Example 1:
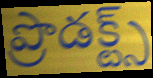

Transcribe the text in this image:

ప్రొడక్ట్స్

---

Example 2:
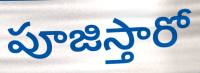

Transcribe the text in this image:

పూజిస్తారో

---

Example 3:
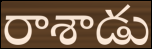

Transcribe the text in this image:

రాశాడు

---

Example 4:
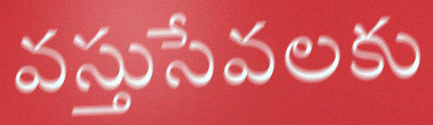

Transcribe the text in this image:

వస్తుసేవలకు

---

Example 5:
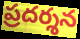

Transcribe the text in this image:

ప్రదర్శన